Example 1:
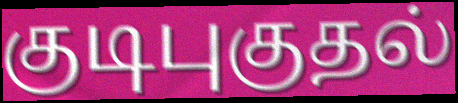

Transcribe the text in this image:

குடிபுகுதல்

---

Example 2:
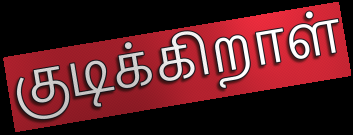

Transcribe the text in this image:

குடிக்கிறாள்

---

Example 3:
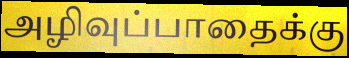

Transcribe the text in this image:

அழிவுப்பாதைக்கு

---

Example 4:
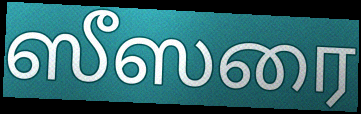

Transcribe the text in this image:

ஸீஸரை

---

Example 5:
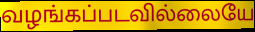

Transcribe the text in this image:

வழங்கப்படவில்லையே